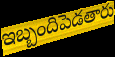
ఇబ్బందిపెడతారు